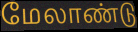
மேலாண்டு